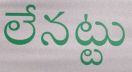
లేనట్టు